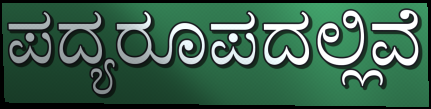
ಪದ್ಯರೂಪದಲ್ಲಿವೆ